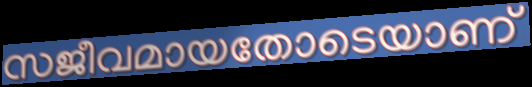
സജീവമായതോടെയാണ്